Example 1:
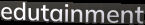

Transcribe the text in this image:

edutainment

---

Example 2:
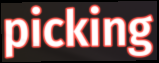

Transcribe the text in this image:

picking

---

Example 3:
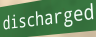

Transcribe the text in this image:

discharged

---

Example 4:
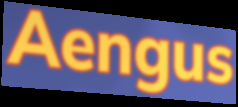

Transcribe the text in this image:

Aengus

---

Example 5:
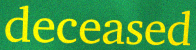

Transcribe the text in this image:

deceased